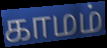
காமம்